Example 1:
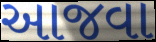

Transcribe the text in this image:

આજવા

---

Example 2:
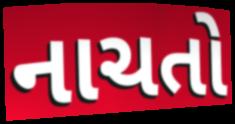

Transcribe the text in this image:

નાચતો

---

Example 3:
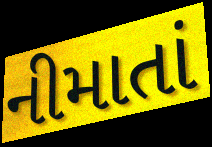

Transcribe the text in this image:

નીમાતાં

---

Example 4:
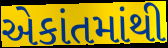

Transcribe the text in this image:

એકાંતમાંથી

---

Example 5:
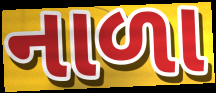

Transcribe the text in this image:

નાળા